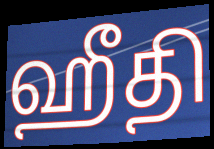
ஹீதி